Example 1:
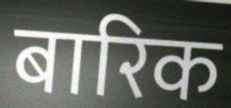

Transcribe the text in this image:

बारिक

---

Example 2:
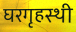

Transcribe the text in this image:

घरगृहस्थी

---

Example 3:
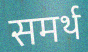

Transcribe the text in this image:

समर्थ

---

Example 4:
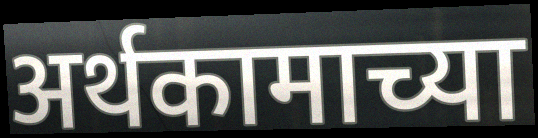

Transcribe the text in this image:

अर्थकामाच्या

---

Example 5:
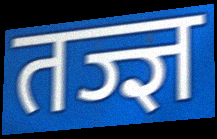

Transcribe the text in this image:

तज्ज्ञ